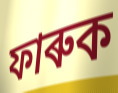
ফাৰুক